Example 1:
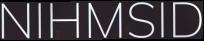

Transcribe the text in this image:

NIHMSID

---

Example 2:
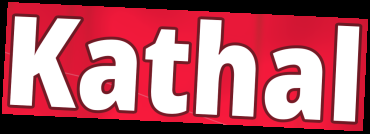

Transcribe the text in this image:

Kathal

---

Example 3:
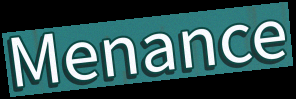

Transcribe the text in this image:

Menance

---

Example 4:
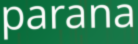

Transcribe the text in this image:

parana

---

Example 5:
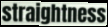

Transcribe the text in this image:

straightness